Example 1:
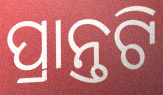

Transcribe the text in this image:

ପ୍ରାନ୍ତଟି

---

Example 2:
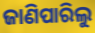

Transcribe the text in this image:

ଜାଣିପାରିଲୁ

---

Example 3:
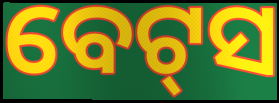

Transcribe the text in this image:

ବେଟ୍‌ସ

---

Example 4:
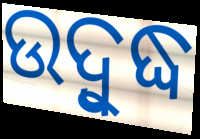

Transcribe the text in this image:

ଉଦ୍ୱୁଦ୍ଧ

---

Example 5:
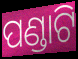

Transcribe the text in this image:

ପଣ୍ଡାଟି